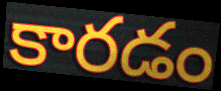
కారడం